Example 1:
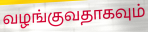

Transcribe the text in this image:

வழங்குவதாகவும்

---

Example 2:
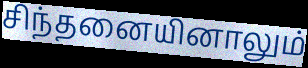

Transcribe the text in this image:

சிந்தனையினாலும்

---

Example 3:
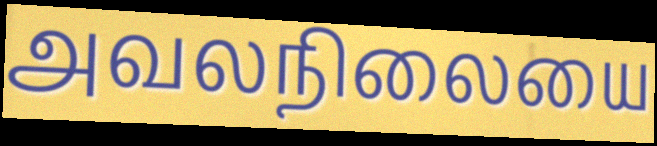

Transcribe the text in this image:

அவலநிலையை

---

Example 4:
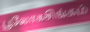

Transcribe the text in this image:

பூலோகசிங்கம்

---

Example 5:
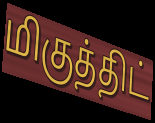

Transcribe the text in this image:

மிகுத்திட்